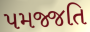
પમજ્જતિ